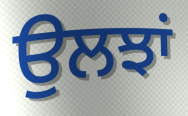
ਉਲਝਾਂ